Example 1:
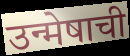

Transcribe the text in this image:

उन्मेषाची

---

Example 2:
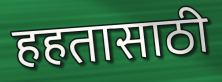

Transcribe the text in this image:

हहतासाठी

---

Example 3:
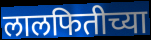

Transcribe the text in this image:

लालफितीच्या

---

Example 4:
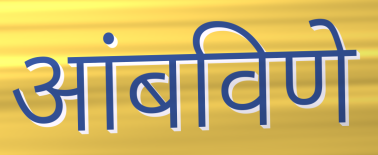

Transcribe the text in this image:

आंबविणे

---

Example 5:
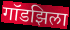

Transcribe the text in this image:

गॉडझिला